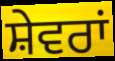
ਸ਼ੇਵਰਾਂ